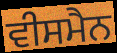
ਵੀਸਮੈਨ